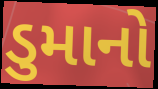
ડુમાનો